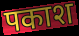
पकाश